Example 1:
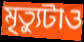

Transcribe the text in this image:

মৃত্যুটাও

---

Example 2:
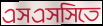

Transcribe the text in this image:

এসএসসিতে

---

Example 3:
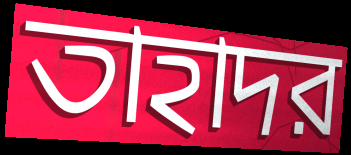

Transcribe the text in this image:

তাহাদর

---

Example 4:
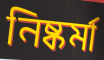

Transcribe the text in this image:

নিষ্কর্মা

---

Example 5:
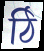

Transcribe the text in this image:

ঠি